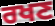
ਰਖਣ